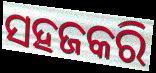
ସହଜକରି